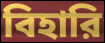
বিহারি